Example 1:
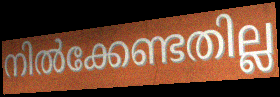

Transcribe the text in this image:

നിൽക്കേണ്ടതില്ല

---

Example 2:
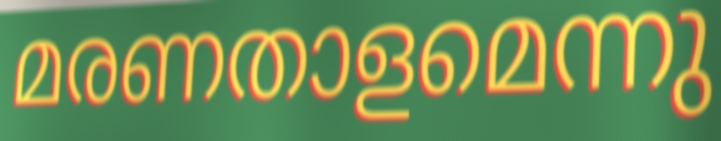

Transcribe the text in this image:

മരണതാളമെന്നു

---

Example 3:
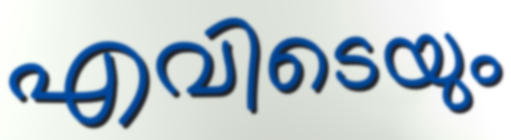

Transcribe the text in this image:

എവിടെയും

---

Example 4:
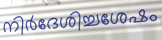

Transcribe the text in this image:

നിർദേശിച്ചശേഷം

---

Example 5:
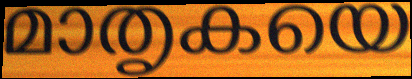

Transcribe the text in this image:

മാതൃകയെ